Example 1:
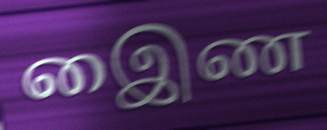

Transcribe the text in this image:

இைண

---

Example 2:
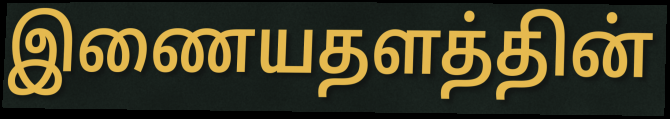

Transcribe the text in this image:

இணையதளத்தின்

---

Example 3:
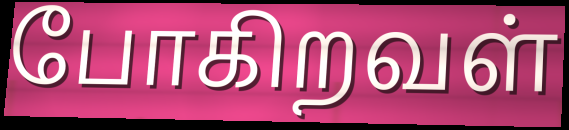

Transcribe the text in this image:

போகிறவள்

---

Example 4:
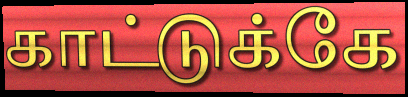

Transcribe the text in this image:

காட்டுக்கே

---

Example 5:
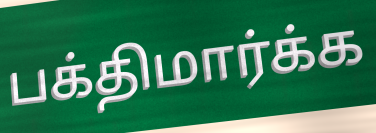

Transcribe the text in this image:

பக்திமார்க்க